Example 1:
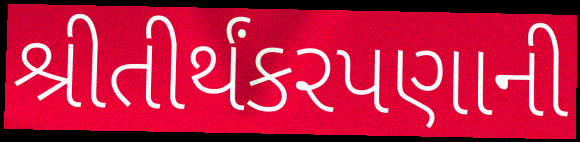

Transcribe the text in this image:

શ્રીતીર્થંકરપણાની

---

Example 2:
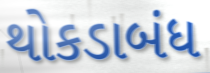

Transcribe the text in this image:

થોકડાબંધ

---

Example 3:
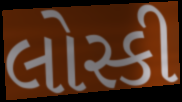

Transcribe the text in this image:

લોસ્કી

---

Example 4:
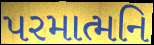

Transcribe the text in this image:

પરમાત્મનિ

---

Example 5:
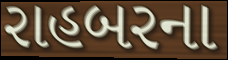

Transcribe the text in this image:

રાહબરના